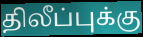
திலீப்புக்கு